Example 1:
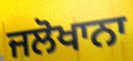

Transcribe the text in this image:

ਜਲੋਖਾਨਾ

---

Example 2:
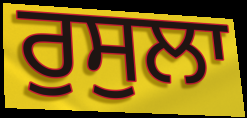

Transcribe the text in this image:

ਰੁਸੁਲਾ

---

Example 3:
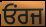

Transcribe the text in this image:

ਓਂਰਜ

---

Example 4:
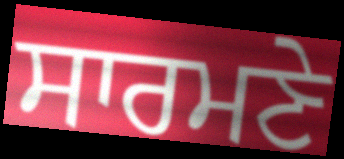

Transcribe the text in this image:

ਸਾਰਮਣੇ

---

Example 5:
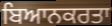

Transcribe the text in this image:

ਬਿਆਨਕਰਤਾ